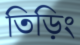
তিড়িং